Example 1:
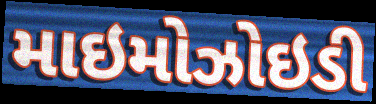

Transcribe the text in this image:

માઇમોઝોઇડી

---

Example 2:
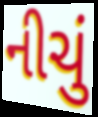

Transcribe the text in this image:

નીચું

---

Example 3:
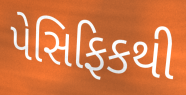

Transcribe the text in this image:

પેસિફિકથી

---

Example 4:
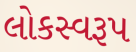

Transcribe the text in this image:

લોકસ્વરૂપ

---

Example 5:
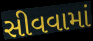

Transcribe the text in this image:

સીવવામાં